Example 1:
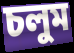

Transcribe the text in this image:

চলুম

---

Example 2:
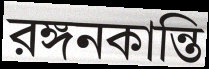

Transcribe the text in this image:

রঙ্গনকান্তি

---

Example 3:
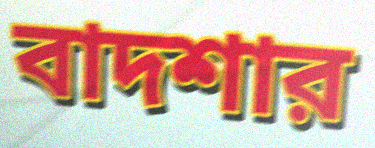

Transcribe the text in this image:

বাদশার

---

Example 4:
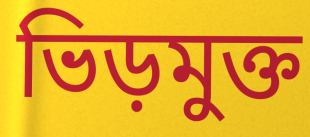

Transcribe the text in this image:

ভিড়মুক্ত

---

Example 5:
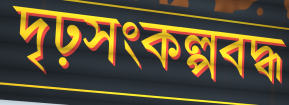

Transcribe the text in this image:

দৃঢ়সংকল্পবদ্ধ